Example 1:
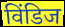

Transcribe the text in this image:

विंडिज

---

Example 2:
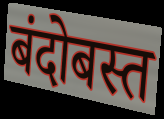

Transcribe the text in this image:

बंदोबस्त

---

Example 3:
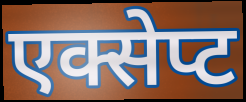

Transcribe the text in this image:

एक्सेप्ट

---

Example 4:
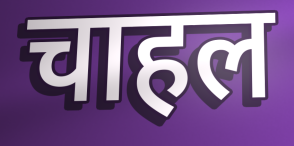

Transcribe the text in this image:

चाहल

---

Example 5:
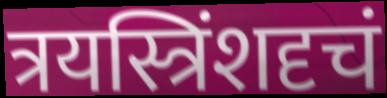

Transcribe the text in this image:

त्रयस्त्रिंशदृचं